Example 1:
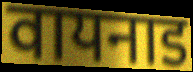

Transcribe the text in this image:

वायनाड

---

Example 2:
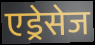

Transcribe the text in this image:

एड्रेसेज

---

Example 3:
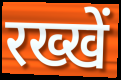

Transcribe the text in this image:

रख्खें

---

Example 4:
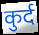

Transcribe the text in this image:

कुर्द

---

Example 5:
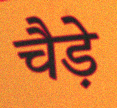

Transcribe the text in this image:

चैड़े